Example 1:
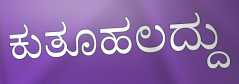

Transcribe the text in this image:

ಕುತೂಹಲದ್ದು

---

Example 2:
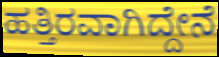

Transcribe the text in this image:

ಹತ್ತಿರವಾಗಿದ್ದೇನೆ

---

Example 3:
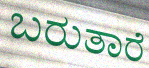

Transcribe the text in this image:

ಬರುತಾರೆ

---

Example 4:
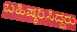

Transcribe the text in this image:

ಬಹಿಷ್ಕರಿಸಿದ್ದರು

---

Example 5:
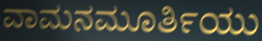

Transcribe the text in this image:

ವಾಮನಮೂರ್ತಿಯು